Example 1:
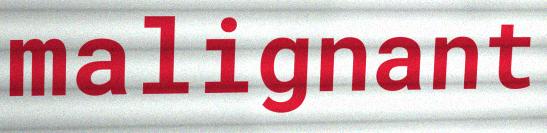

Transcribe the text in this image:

malignant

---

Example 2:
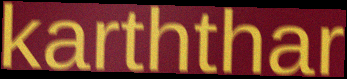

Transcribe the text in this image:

karththar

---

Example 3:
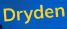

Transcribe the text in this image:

Dryden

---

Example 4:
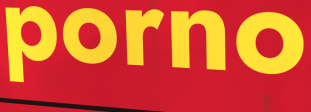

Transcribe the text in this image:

porno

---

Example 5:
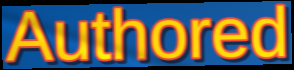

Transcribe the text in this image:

Authored